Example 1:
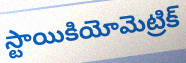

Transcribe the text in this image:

స్టాయికియోమెట్రిక్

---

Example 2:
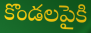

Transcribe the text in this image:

కొండలపైకి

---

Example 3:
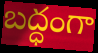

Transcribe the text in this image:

బద్ధంగా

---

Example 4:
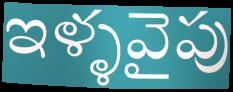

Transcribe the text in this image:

ఇళ్ళవైపు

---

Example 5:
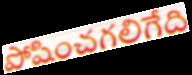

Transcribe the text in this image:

పోషించగలిగేది